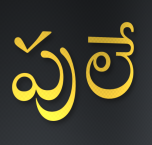
పులే